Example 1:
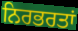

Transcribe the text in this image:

ਨਿਰਭਰਤਾਂ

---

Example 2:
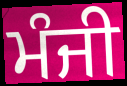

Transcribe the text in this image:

ਮੰਜੀ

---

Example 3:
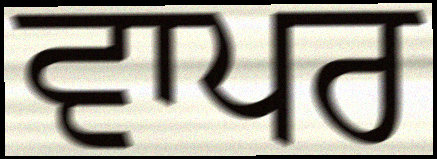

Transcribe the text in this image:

ਵਾਪਰ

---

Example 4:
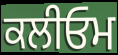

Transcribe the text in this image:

ਕਲੀਓਮ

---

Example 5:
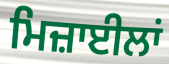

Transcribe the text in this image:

ਮਿਜ਼ਾਈਲਾਂ